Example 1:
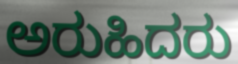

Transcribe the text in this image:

ಅರುಹಿದರು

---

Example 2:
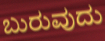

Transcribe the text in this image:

ಬುರುವುದು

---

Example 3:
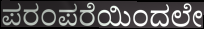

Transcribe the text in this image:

ಪರಂಪರೆಯಿಂದಲೇ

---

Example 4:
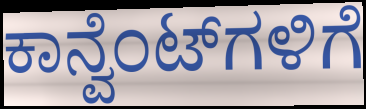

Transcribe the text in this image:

ಕಾನ್ವೆಂಟ್‌ಗಳಿಗೆ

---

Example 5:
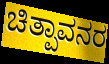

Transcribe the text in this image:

ಚಿತ್ಪಾವನರ